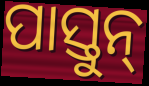
ପାସ୍ତୁନ୍